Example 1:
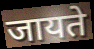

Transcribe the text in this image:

जायते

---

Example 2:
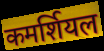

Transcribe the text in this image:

कमर्शियल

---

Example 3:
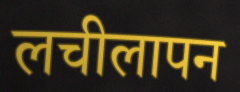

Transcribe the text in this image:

लचीलापन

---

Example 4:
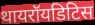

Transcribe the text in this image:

थायरॉयडिटिस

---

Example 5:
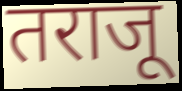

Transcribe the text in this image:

तराजू